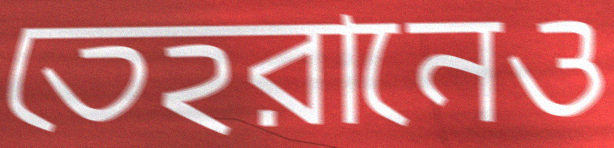
তেহরানেও